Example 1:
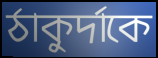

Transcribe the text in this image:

ঠাকুর্দাকে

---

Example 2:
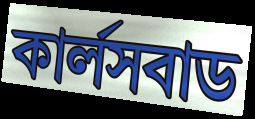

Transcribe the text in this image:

কার্লসবাড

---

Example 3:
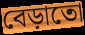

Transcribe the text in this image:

বেড়াতো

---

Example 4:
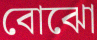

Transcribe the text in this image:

বোঝো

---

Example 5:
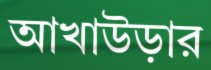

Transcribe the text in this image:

আখাউড়ার